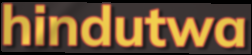
hindutwa